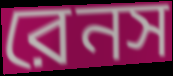
রেনস